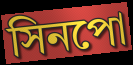
সিনপো